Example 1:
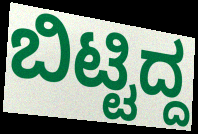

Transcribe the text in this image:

ಬಿಟ್ಟಿದ್ದ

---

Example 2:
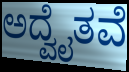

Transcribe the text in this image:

ಅದ್ವೈತವೆ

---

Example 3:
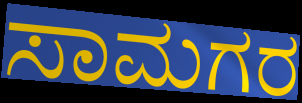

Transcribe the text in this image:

ಸಾಮಗರ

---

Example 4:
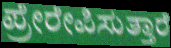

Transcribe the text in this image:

ಪ್ರೇರೇಪಿಸುತ್ತಾರೆ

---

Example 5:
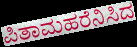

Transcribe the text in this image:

ಪಿತಾಮಹರೆನಿಸಿದ